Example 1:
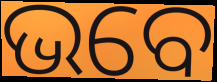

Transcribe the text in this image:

ଭବେ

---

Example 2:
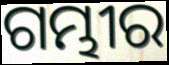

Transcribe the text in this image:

ଗମ୍ଭୀର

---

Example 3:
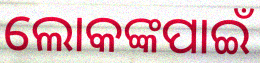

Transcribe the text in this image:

ଲୋକଙ୍କପାଇଁ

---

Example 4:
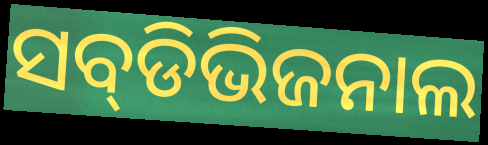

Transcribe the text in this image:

ସବ୍‌ଡିଭିଜନାଲ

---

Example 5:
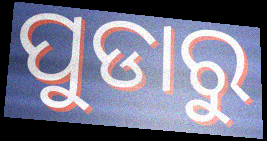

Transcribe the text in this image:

ପୁଡାରୁ